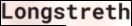
Longstreth